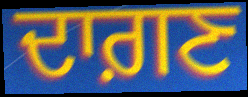
ਦਾਗ਼ਣ